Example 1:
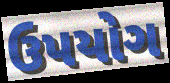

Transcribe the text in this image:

ઉપયોગ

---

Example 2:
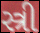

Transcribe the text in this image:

સ્ત્રી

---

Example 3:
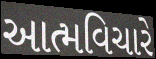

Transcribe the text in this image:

આત્મવિચારે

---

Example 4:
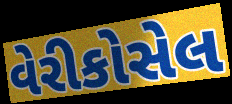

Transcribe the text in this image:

વેરીકોસેલ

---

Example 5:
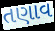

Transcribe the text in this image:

તણાવ